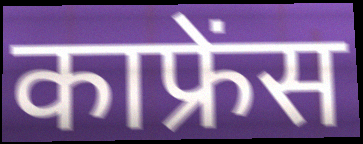
काफ्रेंस